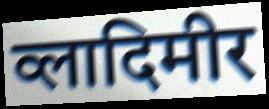
व्लादिमीर